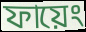
ফায়েং